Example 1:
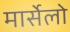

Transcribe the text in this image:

मार्सेलो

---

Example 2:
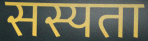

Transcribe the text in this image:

सस्यता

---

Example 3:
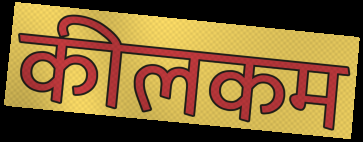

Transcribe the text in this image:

कीलकम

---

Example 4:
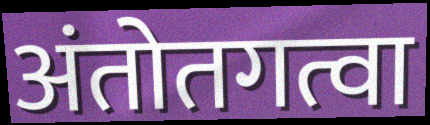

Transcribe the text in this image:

अंतोतगत्वा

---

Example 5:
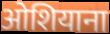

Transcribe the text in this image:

ओशियाना